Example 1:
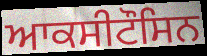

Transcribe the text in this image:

ਆਕਸੀਟੌਸਿਨ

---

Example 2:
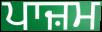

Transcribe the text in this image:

ਪਾਜ਼ਮ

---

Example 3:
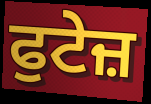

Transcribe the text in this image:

ਫੁਟੇਜ਼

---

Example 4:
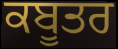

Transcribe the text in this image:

ਕਬੂਤਰ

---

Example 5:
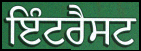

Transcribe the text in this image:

ਇੰਟਰੈਸਟ